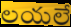
లయలే